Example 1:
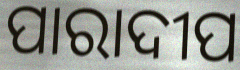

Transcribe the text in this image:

ପାରାଦୀପ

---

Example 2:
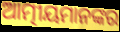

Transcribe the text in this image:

ଆତ୍ମୀୟମାନଙ୍କର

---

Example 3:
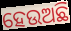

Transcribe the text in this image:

ହେଉଅଛି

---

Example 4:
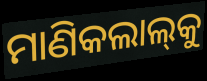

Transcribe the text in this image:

ମାଣିକଲାଲ୍‍କୁ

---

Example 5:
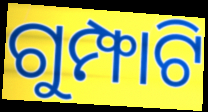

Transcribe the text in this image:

ଗୁମ୍ଫାଟି